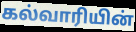
கல்வாரியின்